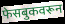
फेसबुकवरून